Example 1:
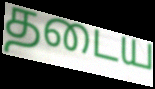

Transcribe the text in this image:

தடைய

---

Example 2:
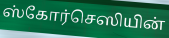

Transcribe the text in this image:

ஸ்கோர்செஸியின்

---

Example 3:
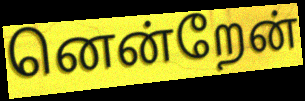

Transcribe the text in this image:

னென்றேன்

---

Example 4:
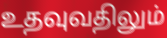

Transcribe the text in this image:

உதவுவதிலும்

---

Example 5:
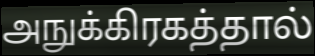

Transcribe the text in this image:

அநுக்கிரகத்தால்